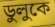
ডুলুকে